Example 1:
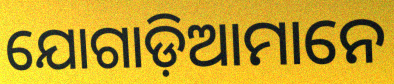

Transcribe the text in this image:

ଯୋଗାଡ଼ିଆମାନେ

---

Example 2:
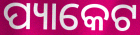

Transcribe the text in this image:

ପ୍ୟାକେଟ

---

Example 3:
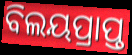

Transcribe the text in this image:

ବିଲୟପ୍ରାପ୍ତ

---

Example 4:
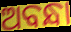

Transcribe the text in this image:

ଅବନ୍ଧା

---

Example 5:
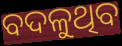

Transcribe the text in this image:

ବଦଳୁଥିବ